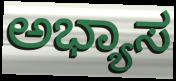
ಅಭ್ಯಾಸ